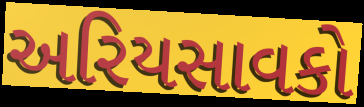
અરિયસાવકો